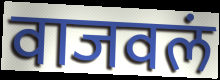
वाजवलं